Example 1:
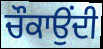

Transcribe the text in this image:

ਚੌਕਾਉਂਦੀ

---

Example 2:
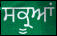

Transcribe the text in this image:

ਸਕ੍ਰੂਆਂ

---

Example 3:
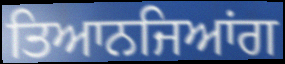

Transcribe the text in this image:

ਤਿਆਨਜਿਆਂਗ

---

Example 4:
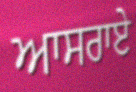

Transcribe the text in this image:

ਆਸਰਾਏ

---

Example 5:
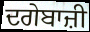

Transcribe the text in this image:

ਦਗੇਬਾਜ਼ੀ